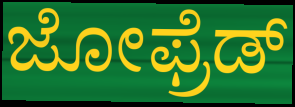
ಜೋಫ್ರೆಡ್